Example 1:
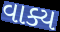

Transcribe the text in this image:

વાક્ય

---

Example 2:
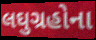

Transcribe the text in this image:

લઘુગ્રહોના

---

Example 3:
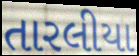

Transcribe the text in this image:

તારલીયા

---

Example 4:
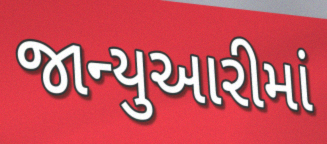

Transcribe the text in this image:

જાન્યુઆરીમાં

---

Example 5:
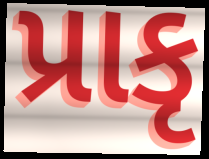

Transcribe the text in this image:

પ્રાકૃ